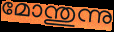
മോന്തുന്നു